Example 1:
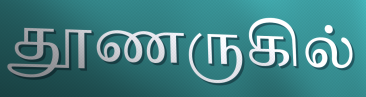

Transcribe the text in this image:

தூணருகில்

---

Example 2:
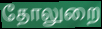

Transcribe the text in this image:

தோலுறை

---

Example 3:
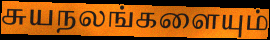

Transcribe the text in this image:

சுயநலங்களையும்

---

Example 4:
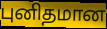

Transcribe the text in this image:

புனிதமான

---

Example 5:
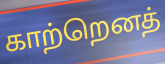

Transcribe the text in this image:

காற்றெனத்